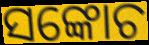
ସଙ୍କୋଚ